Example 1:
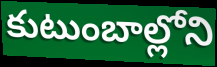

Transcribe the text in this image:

కుటుంబాల్లోని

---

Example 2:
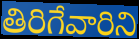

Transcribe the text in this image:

తిరిగేవారిని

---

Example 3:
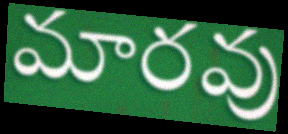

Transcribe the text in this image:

మారవు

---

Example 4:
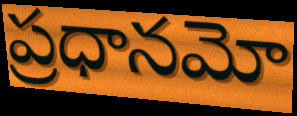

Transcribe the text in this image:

ప్రధానమో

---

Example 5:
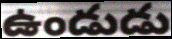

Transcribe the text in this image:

ఉండుడు